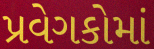
પ્રવેગકોમાં